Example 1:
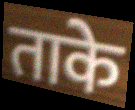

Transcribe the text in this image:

ताके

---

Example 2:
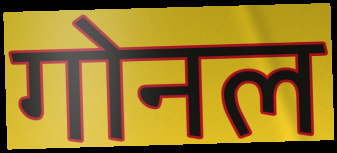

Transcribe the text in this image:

गोनल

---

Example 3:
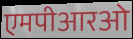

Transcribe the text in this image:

एमपीआरओ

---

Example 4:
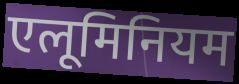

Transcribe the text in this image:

एलूमिनियम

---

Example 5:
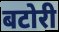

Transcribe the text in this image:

बटोरी